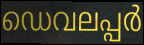
ഡെവലപ്പർ